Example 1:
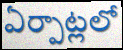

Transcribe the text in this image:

ఏర్పాట్లలో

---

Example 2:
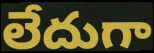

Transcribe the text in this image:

లేదుగా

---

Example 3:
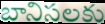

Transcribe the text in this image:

బానిసలకు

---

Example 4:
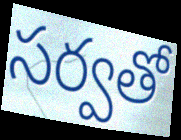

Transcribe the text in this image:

సర్వతో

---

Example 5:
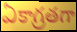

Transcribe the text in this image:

ఏకాగ్రతగా